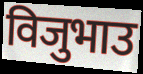
विजुभाउ